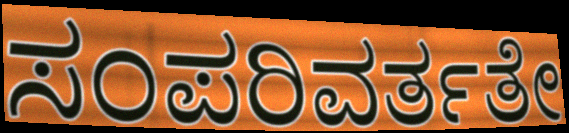
ಸಂಪರಿವರ್ತತೇ